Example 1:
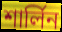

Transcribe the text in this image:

শার্লিন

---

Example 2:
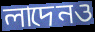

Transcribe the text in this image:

লাদেনও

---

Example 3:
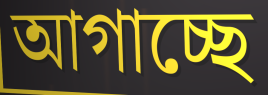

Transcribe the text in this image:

আগাচ্ছে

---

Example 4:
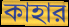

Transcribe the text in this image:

কাহার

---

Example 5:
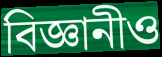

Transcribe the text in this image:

বিজ্ঞানীও